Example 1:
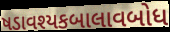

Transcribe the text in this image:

ષડાવશ્યકબાલાવબોધ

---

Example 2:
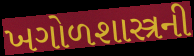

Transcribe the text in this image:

ખગોળશાસ્ત્રની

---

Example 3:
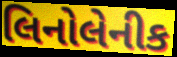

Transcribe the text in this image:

લિનોલેનીક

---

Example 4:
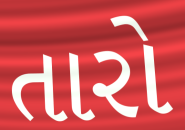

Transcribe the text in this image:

તારો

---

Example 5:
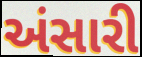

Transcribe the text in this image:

અંસારી